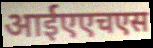
आईएएचएस